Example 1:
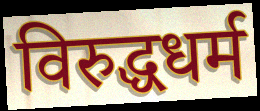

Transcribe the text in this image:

विरुद्धधर्म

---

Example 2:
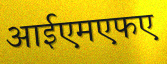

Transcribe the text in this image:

आईएमएफए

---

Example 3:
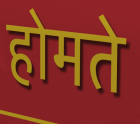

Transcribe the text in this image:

होमते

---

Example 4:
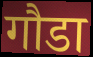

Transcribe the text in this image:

गौडा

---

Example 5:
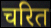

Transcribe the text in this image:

चरित